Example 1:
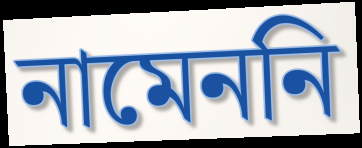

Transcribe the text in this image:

নামেননি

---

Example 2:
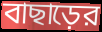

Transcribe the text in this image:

বাছাড়ের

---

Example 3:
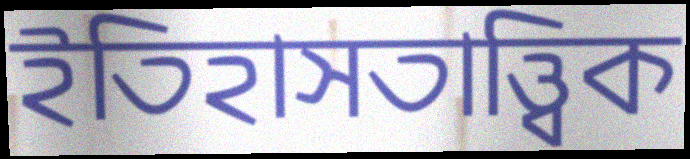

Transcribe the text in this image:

ইতিহাসতাত্ত্বিক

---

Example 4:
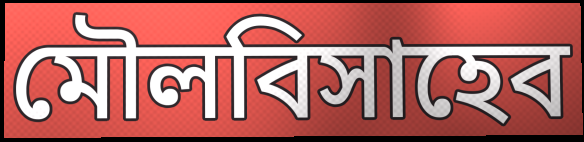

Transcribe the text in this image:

মৌলবিসাহেব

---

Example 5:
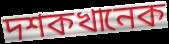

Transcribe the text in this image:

দশকখানেক